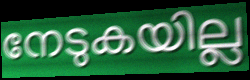
നേടുകയില്ല